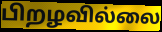
பிறழவில்லை